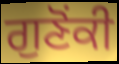
ਗੁਣੋਂਕੀ